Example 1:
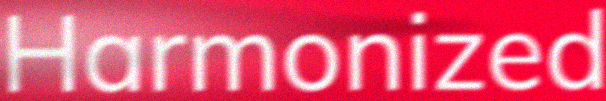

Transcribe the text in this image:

Harmonized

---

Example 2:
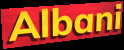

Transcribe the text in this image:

Albani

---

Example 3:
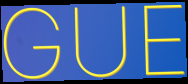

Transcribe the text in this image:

GUE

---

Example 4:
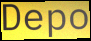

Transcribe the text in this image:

Depo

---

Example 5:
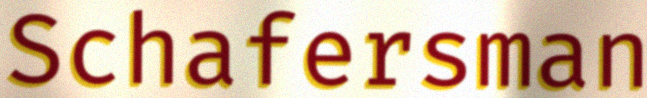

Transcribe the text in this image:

Schafersman